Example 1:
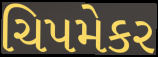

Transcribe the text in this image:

ચિપમેકર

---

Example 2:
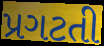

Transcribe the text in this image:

પ્રગટતી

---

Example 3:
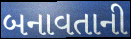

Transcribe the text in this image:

બનાવતાની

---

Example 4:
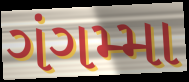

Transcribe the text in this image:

ગંગમ્મા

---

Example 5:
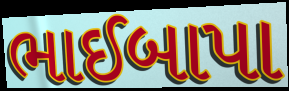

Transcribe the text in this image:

ભાઈબાપા